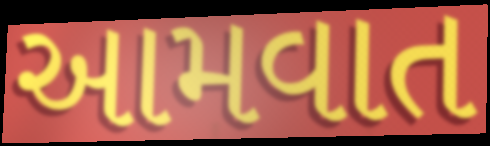
આમવાત